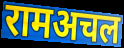
रामअचल